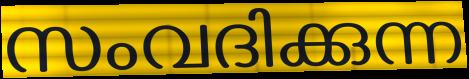
സംവദിക്കുന്ന